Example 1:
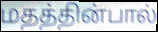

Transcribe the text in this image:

மதத்தின்பால்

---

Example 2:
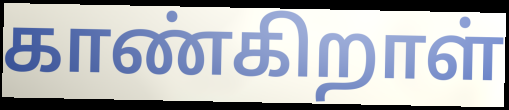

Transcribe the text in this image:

காண்கிறாள்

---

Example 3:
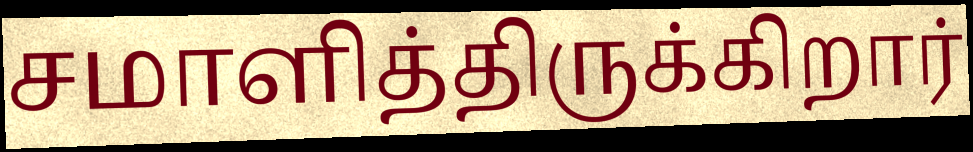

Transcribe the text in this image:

சமாளித்திருக்கிறார்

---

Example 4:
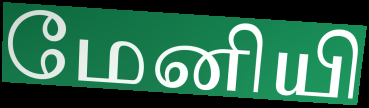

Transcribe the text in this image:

மேனியி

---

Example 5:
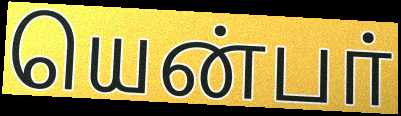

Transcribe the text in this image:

யென்பர்